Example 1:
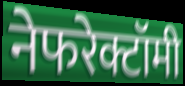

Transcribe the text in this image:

नेफरेक्टॉमी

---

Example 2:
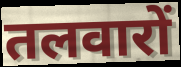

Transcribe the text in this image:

तलवारों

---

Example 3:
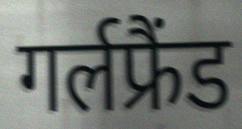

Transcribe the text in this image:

गर्लफ्रैंड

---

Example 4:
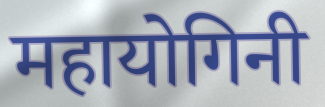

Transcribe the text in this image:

महायोगिनी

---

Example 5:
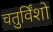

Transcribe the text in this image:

चतुर्विंशो